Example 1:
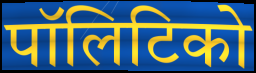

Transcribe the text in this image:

पॉलिटिको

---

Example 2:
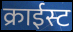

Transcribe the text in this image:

क्राईस्ट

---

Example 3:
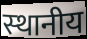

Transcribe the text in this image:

स्‍थानीय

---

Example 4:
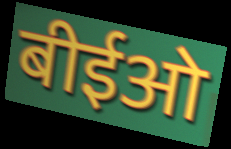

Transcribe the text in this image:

बीईओ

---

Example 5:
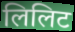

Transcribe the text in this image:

लिलिट